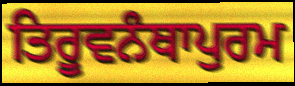
ਤਿਰੂਵਨੰਥਾਪੁਰਮ